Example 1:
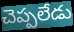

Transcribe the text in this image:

చెప్పలేడు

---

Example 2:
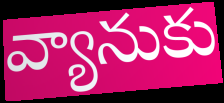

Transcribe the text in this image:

వ్యానుకు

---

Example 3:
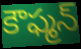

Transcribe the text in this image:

కౌఫ్మన్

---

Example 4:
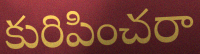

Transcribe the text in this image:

కురిపించరా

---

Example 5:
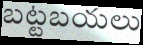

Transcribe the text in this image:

బట్టబయలు